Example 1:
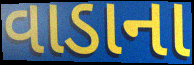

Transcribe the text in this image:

વાડાના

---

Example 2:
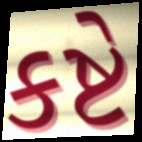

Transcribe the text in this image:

કષ્ટે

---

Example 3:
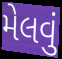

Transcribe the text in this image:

મેલવું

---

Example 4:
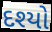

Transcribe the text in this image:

દશ્યો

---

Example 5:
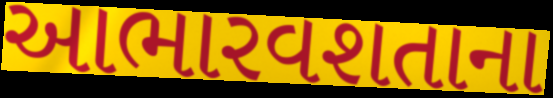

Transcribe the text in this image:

આભારવશતાના